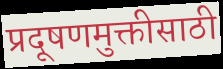
प्रदूषणमुक्तीसाठी